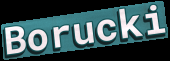
Borucki